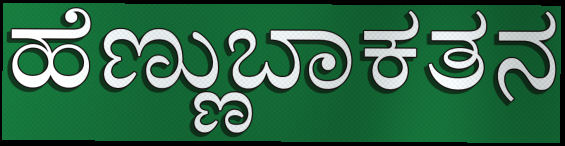
ಹೆಣ್ಣುಬಾಕತನ